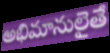
అభిమానులైతే